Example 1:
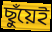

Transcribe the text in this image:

ছুঁয়েই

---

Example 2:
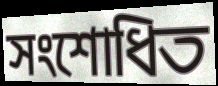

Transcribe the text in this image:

সংশোধিত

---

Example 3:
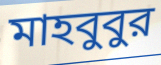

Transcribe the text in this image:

মাহবুবুর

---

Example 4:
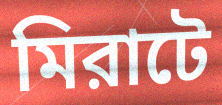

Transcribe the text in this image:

মিরাটে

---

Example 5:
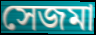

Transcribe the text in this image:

সেজমা